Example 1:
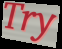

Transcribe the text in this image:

Try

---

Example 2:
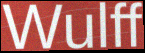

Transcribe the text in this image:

Wulff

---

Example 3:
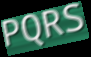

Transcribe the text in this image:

PQRS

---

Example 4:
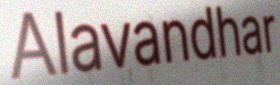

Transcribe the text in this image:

Alavandhar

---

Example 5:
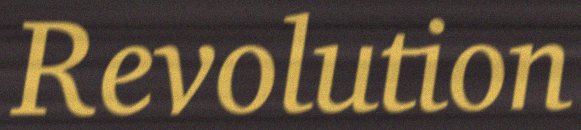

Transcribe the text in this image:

Revolution